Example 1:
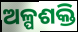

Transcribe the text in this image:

ଅଳ୍ପଶକ୍ତି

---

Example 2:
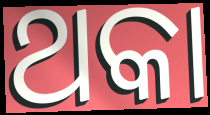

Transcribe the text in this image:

ଥକା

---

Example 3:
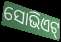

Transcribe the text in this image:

ସୋଭିଏଟ୍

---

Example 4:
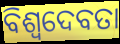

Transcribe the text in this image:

ବିଶ୍ୱଦେବତା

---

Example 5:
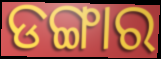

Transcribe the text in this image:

ଡଙ୍ଗାର